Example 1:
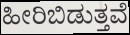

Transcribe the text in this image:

ಹೀರಿಬಿಡುತ್ತವೆ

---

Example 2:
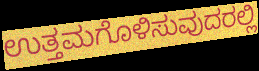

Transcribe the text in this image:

ಉತ್ತಮಗೊಳಿಸುವುದರಲ್ಲಿ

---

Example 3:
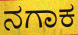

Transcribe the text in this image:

ನಗಾಕ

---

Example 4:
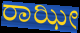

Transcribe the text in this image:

ರಾಝೀ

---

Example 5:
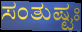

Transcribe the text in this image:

ಸಂತುಷ್ಟಃ